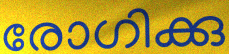
രോഗിക്കു